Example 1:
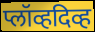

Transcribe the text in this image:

प्लॉव्हदिव्ह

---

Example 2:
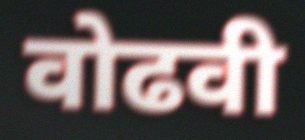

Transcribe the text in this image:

वोढवी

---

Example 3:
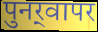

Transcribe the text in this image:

पुनर्वापर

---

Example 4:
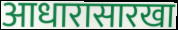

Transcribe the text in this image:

आधारासारखा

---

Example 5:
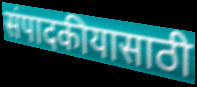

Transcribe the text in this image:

संपादकीयासाठी